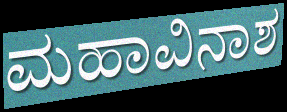
ಮಹಾವಿನಾಶ